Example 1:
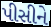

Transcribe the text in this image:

પીસીને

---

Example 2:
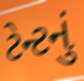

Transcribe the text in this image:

ટેન્ટનું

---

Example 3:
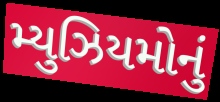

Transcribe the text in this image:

મ્યુઝિયમોનું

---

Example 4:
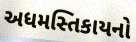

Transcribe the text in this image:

અધમસ્તિકાયનો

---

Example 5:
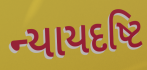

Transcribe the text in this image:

ન્યાયદષ્ટિ